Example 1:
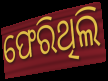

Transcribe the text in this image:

ଫେରିଥିଲି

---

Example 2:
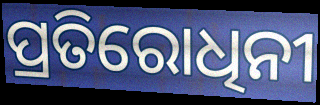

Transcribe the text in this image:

ପ୍ରତିରୋଧିନୀ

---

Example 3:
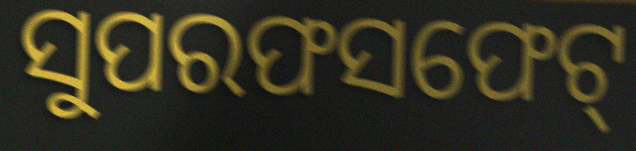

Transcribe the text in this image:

ସୁପରଫସଫେଟ୍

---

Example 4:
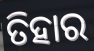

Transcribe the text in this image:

ତିହାର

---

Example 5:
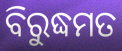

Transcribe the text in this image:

ବିରୁଦ୍ଧମତ